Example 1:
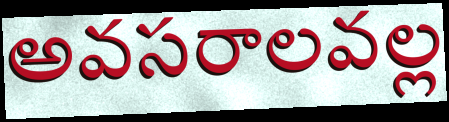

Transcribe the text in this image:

అవసరాలవల్ల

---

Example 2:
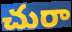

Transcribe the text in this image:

చురా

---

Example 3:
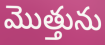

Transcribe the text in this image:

మొత్తును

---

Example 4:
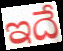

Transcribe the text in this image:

ఇదే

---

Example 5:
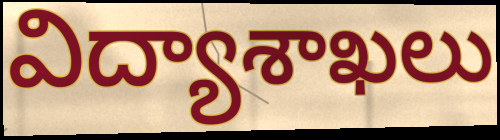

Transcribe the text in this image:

విద్యాశాఖలు